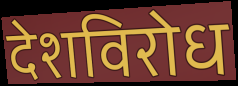
देशविरोध